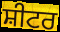
ਸ਼ੀਟਰ